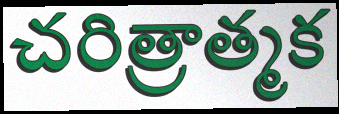
చరిత్రాత్మక